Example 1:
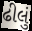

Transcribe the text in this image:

ઢીલું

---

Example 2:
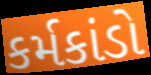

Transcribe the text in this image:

કર્મકાંડો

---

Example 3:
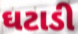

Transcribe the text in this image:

ઘટાડી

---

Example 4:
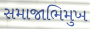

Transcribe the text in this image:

સમાજાભિમુખ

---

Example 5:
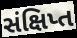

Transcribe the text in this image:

સંક્ષિપ્ત